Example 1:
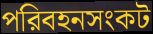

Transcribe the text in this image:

পরিবহনসংকট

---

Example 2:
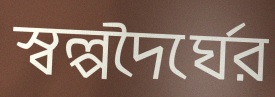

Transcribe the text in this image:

স্বল্পদৈর্ঘের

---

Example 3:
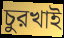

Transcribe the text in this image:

চুরখাই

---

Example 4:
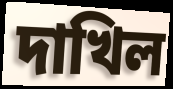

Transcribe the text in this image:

দাখিল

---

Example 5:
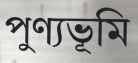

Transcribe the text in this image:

পুণ্যভূমি